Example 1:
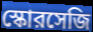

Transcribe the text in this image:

স্কোরসেজি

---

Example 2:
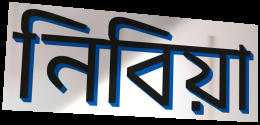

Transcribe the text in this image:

নিবিয়া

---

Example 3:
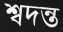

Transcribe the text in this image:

শ্বদন্ত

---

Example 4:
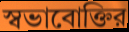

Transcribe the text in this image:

স্বভাবোক্তির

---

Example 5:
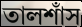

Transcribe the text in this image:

তালশাঁস